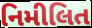
નિમીલિત